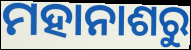
ମହାନାଶରୁ